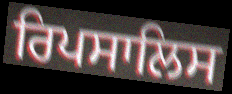
ਰਿਪਸਾਲਿਸ